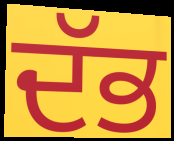
ਦੱਭ